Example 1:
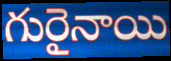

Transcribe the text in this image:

గురైనాయి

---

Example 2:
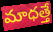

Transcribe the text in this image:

మాధత్తే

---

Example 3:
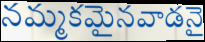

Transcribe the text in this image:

నమ్మకమైనవాడనై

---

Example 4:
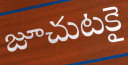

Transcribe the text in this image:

జూచుటకై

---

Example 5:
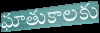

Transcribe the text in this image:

ఘాతుకాలకు